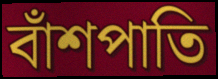
বাঁশপাতি